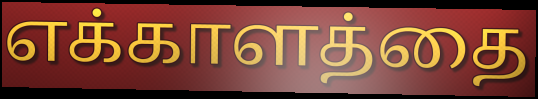
எக்காளத்தை